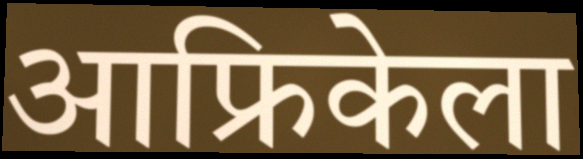
आफ्रिकेला